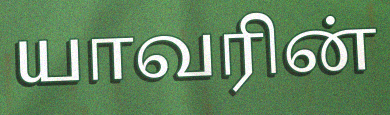
யாவரின்